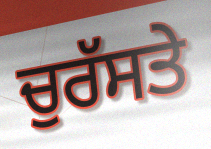
ਚੁਰੱਸਤੇ